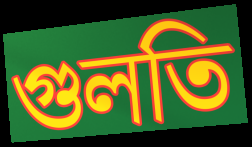
গুলতি